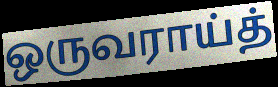
ஒருவராய்த்